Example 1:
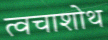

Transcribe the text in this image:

त्वचाशोथ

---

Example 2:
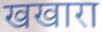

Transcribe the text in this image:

खखारा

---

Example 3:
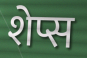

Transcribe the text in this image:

शेप्स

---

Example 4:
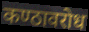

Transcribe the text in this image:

कण्ठावरोध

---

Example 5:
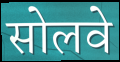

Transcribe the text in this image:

सोलवे